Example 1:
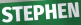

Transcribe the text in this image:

STEPHEN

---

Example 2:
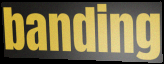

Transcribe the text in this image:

banding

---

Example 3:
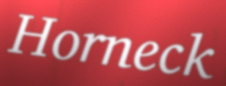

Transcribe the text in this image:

Horneck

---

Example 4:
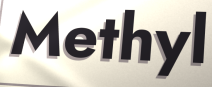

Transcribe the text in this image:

Methyl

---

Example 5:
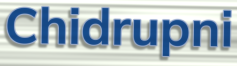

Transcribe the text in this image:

Chidrupni